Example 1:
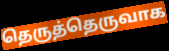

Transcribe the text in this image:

தெருத்தெருவாக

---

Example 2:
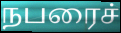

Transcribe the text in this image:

நபரைச்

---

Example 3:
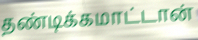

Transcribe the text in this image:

தண்டிக்கமாட்டான்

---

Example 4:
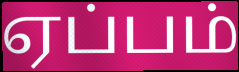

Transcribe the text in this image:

ஏப்பம்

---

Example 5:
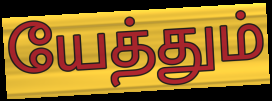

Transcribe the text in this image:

யேத்தும்